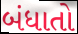
બંધાતો